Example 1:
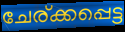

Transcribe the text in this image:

ചേര്ക്കപ്പെട്ട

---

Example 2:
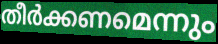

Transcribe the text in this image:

തീർക്കണമെന്നും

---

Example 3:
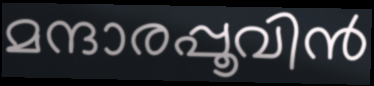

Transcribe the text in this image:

മന്ദാരപ്പൂവിൻ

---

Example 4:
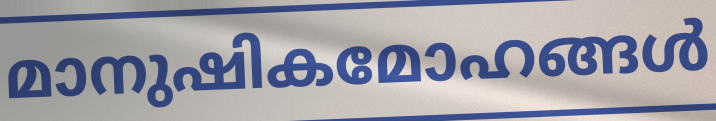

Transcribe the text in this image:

മാനുഷികമോഹങ്ങൾ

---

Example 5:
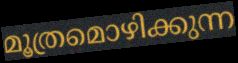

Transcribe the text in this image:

മൂത്രമൊഴിക്കുന്ന